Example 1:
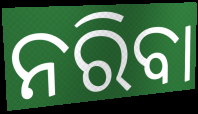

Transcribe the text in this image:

ନରିବା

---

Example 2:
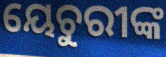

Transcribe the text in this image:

ୟେଚୁରୀଙ୍କ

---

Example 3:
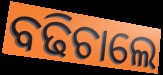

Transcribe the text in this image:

ବଢିଚାଲେ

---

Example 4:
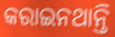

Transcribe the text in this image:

କରାଇନଥାନ୍ତି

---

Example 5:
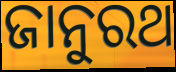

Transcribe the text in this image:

ଜାନୁରଥ